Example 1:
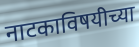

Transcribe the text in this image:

नाटकाविषयीच्या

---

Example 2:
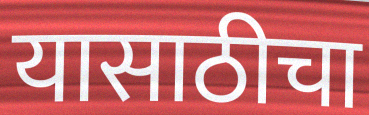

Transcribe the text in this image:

यासाठीचा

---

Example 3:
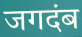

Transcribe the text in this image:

जगदंब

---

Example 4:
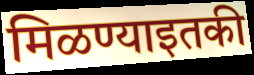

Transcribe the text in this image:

मिळण्याइतकी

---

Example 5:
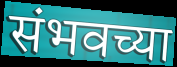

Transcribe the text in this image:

संभवच्या